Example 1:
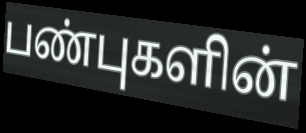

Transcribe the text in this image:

பண்புகளின்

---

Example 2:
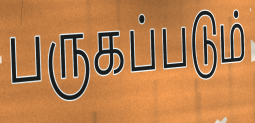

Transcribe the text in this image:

பருகப்படும்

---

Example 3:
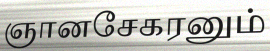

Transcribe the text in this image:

ஞானசேகரனும்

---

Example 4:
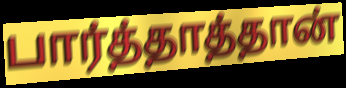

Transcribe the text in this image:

பார்த்தாத்தான்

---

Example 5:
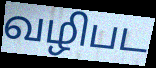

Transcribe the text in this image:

வழிபட